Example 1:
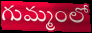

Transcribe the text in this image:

గుమ్మంలో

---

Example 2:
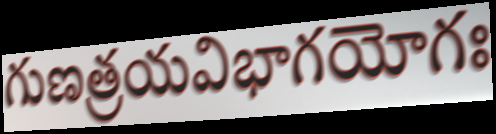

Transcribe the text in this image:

గుణత్రయవిభాగయోగః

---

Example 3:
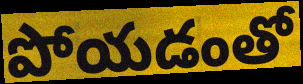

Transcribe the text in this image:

పోయడంతో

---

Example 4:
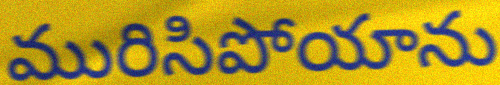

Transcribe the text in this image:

మురిసిపోయాను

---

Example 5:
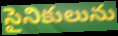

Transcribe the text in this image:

సైనికులును